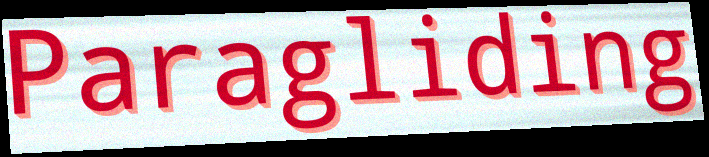
Paragliding